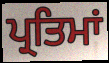
ਪ੍ਰਤਿਮਾਂ